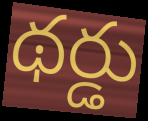
థర్డు